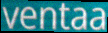
ventaa